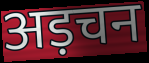
अड़चन